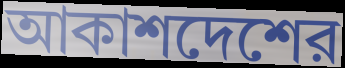
আকাশদেশের